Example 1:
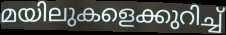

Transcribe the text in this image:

മയിലുകളെക്കുറിച്ച്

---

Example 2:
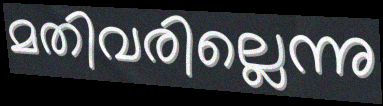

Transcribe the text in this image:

മതിവരില്ലെന്നു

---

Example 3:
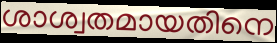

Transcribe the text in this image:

ശാശ്വതമായതിനെ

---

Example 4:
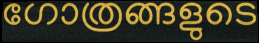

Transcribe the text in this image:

ഗോത്രങ്ങളുടെ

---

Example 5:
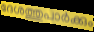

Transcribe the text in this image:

ദേശത്തുപാർക്കും